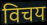
विचय